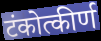
टंकोत्कीर्ण